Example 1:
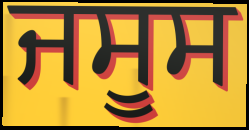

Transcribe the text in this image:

ਜਸੂਸ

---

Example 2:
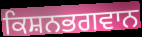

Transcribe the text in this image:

ਕਿਸ਼ਨਭਗਵਾਨ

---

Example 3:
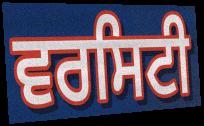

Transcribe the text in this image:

ਵਰਸਿਟੀ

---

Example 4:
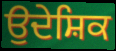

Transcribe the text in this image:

ਉਦੇਸ਼ਿਕ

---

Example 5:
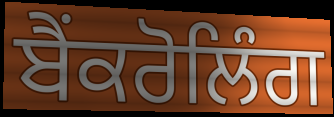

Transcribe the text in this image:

ਬੈਂਕਰੋਲਿੰਗ